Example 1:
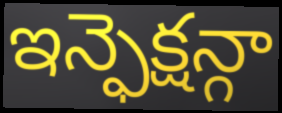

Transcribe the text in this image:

ఇన్ఫెక్షన్గా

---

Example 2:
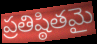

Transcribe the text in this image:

ప్రతిష్ఠితమై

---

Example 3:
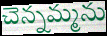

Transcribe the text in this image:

చెన్నమ్మను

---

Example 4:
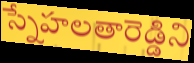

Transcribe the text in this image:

స్నేహలతారెడ్డిని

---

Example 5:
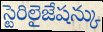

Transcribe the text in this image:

స్టెరిలైజేషన్కు